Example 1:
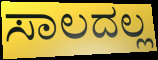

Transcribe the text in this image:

ಸಾಲದಲ್ಲ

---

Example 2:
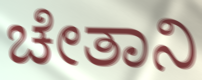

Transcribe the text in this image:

ಚೇತಾನಿ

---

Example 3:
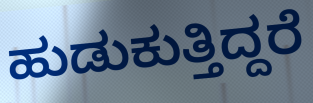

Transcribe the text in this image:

ಹುಡುಕುತ್ತಿದ್ದರೆ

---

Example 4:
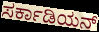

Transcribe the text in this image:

ಸರ್ಕಾಡಿಯನ್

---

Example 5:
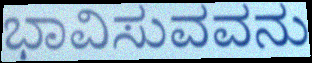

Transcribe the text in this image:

ಭಾವಿಸುವವನು